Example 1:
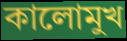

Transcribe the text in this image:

কালোমুখ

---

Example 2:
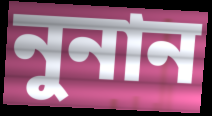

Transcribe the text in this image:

নুনান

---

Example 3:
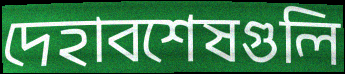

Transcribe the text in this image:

দেহাবশেষগুলি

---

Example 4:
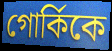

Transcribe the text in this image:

গোর্কিকে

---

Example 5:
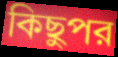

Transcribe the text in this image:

কিছুপর